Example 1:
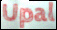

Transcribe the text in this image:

Upal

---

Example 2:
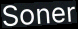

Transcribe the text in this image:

Soner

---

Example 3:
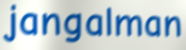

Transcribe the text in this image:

jangalman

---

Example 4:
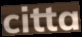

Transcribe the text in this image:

citta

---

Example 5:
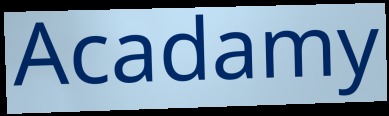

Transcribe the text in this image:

Acadamy